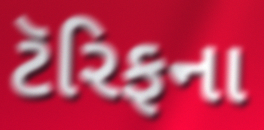
ટૅરિફના